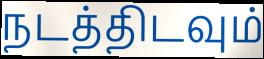
நடத்திடவும்